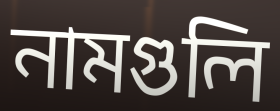
নামগুলি